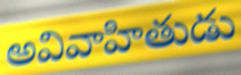
అవివాహితుడు